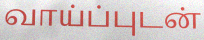
வாய்ப்புடன்